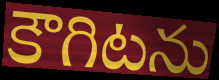
కౌగిటను